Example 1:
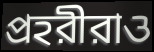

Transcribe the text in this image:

প্রহরীরাও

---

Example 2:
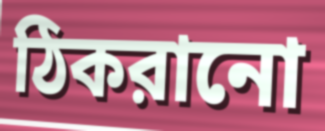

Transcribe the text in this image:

ঠিকরানো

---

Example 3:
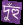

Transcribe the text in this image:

দুঁহু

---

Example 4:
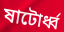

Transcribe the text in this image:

ষাটোর্ধ্ব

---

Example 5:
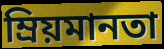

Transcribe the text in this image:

ম্রিয়মানতা